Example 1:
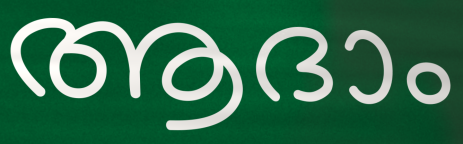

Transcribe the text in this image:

ആദാം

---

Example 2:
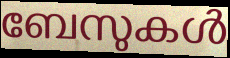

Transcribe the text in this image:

ബേസുകൾ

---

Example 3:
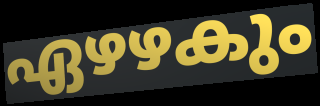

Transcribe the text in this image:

ഏഴഴകും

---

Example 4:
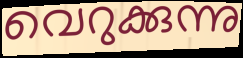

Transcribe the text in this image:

വെറുക്കുന്നു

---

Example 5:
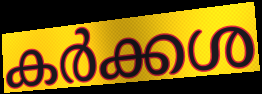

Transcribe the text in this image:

കർക്കശ